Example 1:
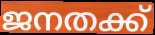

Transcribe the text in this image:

ജനതക്ക്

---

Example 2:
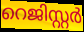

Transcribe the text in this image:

റെജിസ്റ്റർ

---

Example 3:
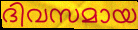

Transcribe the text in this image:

ദിവസമായ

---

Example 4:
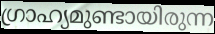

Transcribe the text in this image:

ഗ്രാഹ്യമുണ്ടായിരുന്ന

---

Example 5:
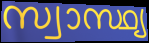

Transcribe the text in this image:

സ്വാസ്ഥ്യ